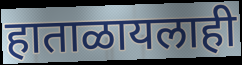
हाताळायलाही